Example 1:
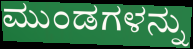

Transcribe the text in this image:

ಮುಂಡಗಳನ್ನು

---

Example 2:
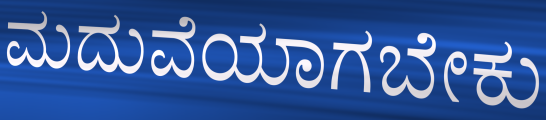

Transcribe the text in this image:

ಮದುವೆಯಾಗಬೇಕು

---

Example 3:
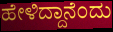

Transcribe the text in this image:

ಹೇಳಿದ್ದಾನೆಂದು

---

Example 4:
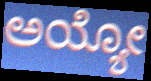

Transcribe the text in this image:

ಅಯ್ಯೋ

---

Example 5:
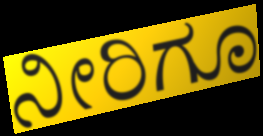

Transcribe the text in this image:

ನೀರಿಗೂ